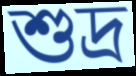
শুদ্ৰ